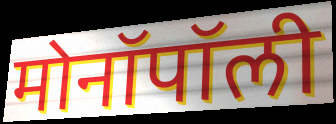
मोनॉपॉली